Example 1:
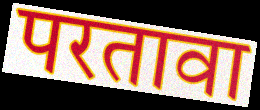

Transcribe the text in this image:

परतावा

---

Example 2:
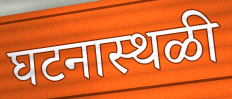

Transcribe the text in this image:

घटनास्थळी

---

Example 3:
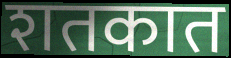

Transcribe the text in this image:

शतकात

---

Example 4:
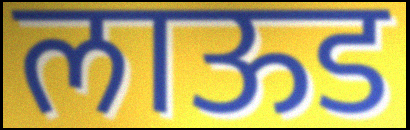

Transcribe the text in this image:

लाऊड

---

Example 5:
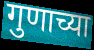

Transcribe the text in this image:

गुणाच्या